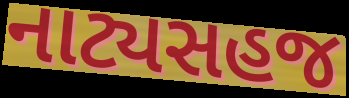
નાટ્યસહજ